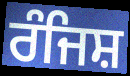
ਰੰਜਿਸ਼